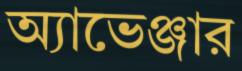
অ্যাভেঞ্জার